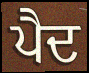
ਪੈਦ